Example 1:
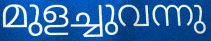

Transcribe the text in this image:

മുളച്ചുവന്നു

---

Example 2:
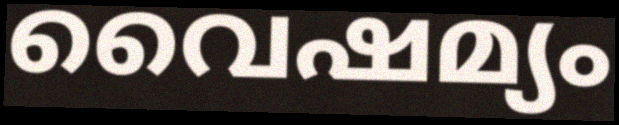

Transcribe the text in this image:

വൈഷമ്യം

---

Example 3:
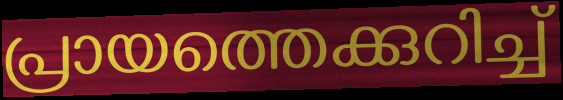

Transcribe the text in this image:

പ്രായത്തെക്കുറിച്ച്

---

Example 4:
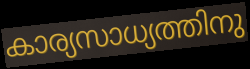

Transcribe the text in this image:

കാര്യസാധ്യത്തിനു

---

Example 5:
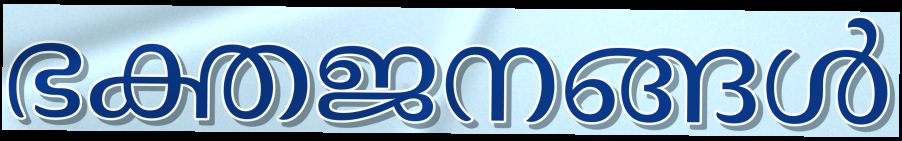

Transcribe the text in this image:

ഭക്തജനങ്ങൾ